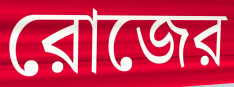
রোজের